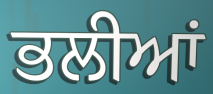
ਭਲੀਆਂ